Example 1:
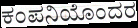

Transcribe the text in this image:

ಕಂಪನಿಯೊಂದರ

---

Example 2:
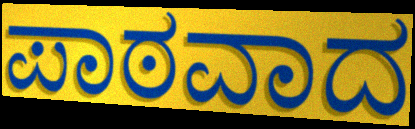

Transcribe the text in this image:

ಪಾಠವಾದ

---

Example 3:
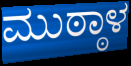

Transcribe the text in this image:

ಮುಠ್ಠಾಳ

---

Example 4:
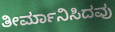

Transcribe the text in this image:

ತೀರ್ಮಾನಿಸಿದವು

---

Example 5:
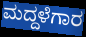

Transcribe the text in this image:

ಮದ್ದಳೆಗಾರ